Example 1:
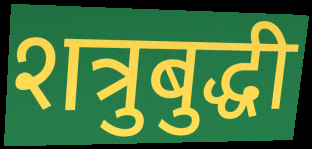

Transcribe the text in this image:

शत्रुबुद्धी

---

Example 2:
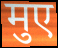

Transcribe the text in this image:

मुए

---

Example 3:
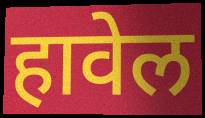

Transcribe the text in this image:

हावेल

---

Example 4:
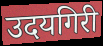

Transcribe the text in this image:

उदयगिरी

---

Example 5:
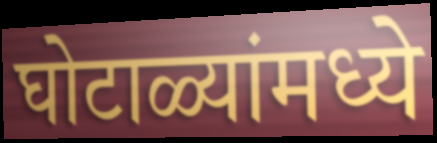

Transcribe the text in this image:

घोटाळ्यांमध्ये